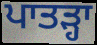
ਪਾਤੜ੍ਹਾ